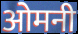
ओमनी